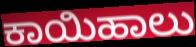
ಕಾಯಿಹಾಲು